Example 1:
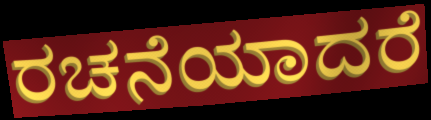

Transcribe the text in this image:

ರಚನೆಯಾದರೆ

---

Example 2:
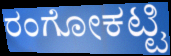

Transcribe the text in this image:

ರಂಗೋಕಟ್ಟಿ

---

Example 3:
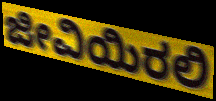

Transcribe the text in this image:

ಜೀವಿಯಿರಲಿ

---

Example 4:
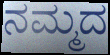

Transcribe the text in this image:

ನಮ್ಮದ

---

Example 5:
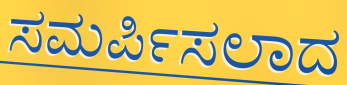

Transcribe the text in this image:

ಸಮರ್ಪಿಸಲಾದ